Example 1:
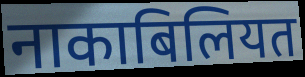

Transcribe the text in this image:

नाकाबिलियत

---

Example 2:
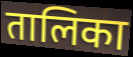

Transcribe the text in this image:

तालिका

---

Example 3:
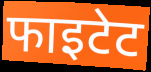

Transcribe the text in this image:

फाइटेट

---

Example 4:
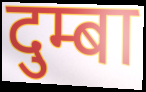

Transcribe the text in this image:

दुम्बा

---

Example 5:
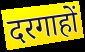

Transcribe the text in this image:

दरगाहों